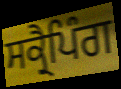
ਸਕ੍ਰੈਪਿੰਗ